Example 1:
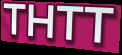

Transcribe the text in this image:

THTT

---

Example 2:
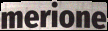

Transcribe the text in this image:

merione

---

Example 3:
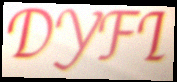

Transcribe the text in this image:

DYFI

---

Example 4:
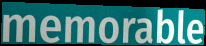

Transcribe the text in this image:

memorable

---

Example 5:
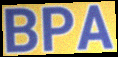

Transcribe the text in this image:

BPA